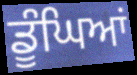
ਡੂੰਘਿਆਂ